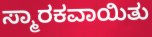
ಸ್ಮಾರಕವಾಯಿತು